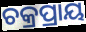
ଚକ୍ରପ୍ରାୟ